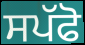
ਸਪੱਫੋ